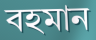
বহমান